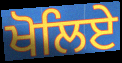
ਖੋਲਿਏ